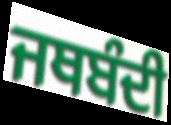
ਜਥਬੰਦੀ